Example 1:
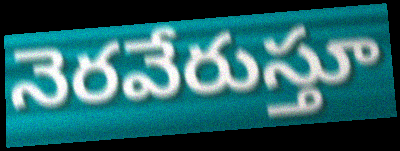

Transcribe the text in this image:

నెరవేరుస్తూ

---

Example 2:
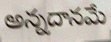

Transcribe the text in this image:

అన్నదానమే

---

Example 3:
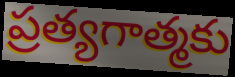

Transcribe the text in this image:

ప్రత్యగాత్మకు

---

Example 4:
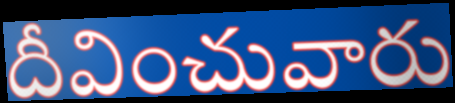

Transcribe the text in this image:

దీవించువారు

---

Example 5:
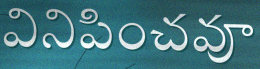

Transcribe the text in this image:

వినిపించవూ